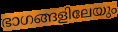
ഭാഗങ്ങളിലേയും